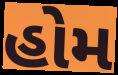
હોમ